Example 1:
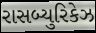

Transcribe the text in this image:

રાસબ્યુરિકેઝ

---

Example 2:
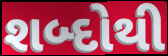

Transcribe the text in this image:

શબ્દોથી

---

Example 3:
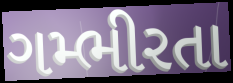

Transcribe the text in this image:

ગમ્ભીરતા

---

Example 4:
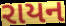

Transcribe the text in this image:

રાયન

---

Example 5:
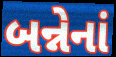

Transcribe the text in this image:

બન્નેનાં